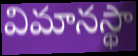
విమానస్థా